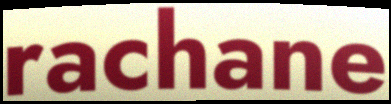
rachane